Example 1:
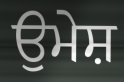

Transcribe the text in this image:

ਉਮੇਸ਼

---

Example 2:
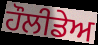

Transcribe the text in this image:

ਹੌਲੀਡੇਅ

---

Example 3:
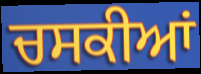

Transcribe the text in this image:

ਚਸਕੀਆਂ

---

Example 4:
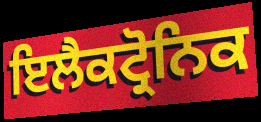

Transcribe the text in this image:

ਇਲੈਕਟ੍ਰੋਨਿਕ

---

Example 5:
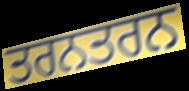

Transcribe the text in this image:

ਤਰਨਤਰਨ